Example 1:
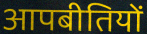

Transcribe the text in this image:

आपबीतियों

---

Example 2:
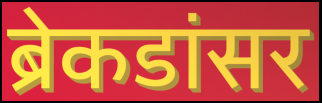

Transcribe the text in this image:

ब्रेकडांसर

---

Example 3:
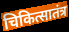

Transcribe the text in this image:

चिकित्सातंत्र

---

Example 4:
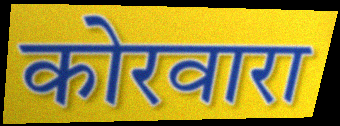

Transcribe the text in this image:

कोरवारा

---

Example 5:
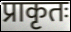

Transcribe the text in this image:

प्राकृतः